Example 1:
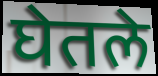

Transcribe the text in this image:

घेतले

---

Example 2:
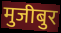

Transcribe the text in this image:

मुजीबुर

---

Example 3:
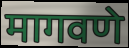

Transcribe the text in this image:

मागवणे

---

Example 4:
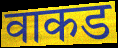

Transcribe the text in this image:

वाकड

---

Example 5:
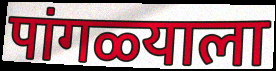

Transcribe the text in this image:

पांगळ्याला